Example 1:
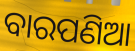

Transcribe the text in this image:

ବାରପଣିଆ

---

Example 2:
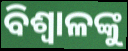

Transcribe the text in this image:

ବିଶ୍ୱାଳଙ୍କୁ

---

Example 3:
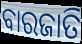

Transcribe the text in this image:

ବାରଜାତି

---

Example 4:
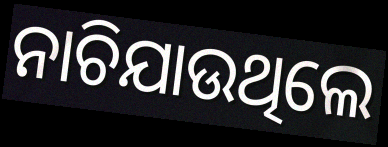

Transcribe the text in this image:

ନାଚିଯାଉଥିଲେ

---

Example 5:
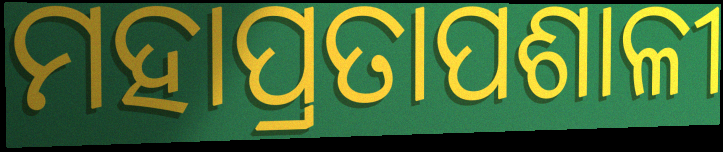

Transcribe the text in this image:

ମହାପ୍ରତାପଶାଳୀ